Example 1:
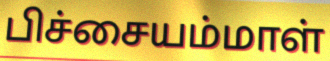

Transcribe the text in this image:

பிச்சையம்மாள்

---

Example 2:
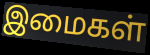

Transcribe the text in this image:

இமைகள்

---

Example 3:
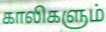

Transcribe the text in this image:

காலிகளும்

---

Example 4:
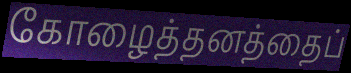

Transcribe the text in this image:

கோழைத்தனத்தைப்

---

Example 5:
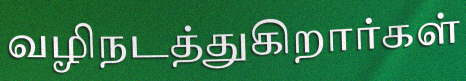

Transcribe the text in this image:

வழிநடத்துகிறார்கள்